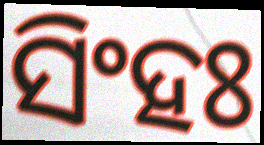
ସିଂହଃ